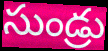
సుండ్రు